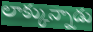
లాక్కున్నాడు